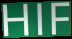
HIF